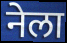
नेला